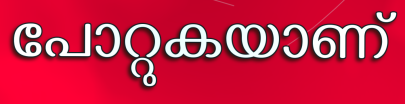
പോറ്റുകയാണ്